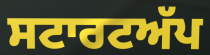
ਸਟਾਰਟਅੱਪ